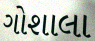
ગોશાલા